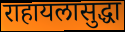
राहायलासुद्धा